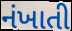
નંખાતી